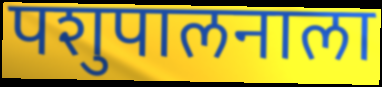
पशुपालनाला